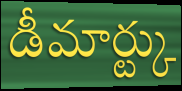
డీమార్ట్కు